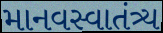
માનવસ્વાતંત્ર્ય